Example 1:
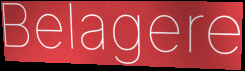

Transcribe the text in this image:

Belagere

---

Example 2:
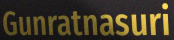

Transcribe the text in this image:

Gunratnasuri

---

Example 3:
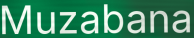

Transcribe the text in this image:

Muzabana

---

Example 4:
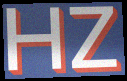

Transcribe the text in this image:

HZ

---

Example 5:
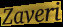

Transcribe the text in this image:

Zaveri